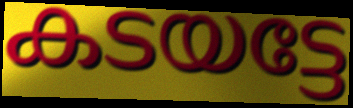
കടയട്ടേ